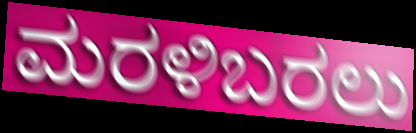
ಮರಳಿಬರಲು